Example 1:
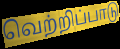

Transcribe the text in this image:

வெற்றிப்பாடு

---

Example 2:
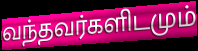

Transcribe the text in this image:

வந்தவர்களிடமும்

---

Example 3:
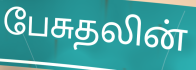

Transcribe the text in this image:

பேசுதலின்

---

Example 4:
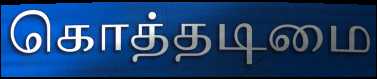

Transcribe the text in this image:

கொத்தடிமை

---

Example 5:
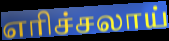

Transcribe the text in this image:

எரிச்சலாய்